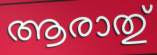
ആരാതു്